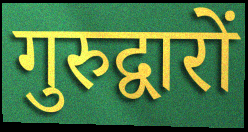
गुरुद्वारों